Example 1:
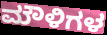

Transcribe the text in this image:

ಮೌಳಿಗಳ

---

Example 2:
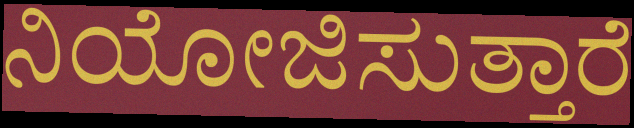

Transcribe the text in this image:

ನಿಯೋಜಿಸುತ್ತಾರೆ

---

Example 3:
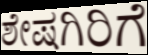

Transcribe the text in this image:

ಶೇಷಗಿರಿಗೆ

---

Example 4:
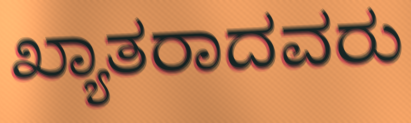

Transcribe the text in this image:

ಖ್ಯಾತರಾದವರು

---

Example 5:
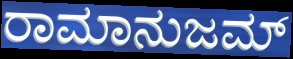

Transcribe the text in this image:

ರಾಮಾನುಜಮ್